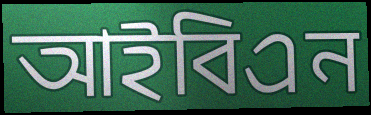
আইবিএন